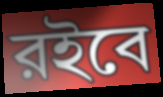
রইবে